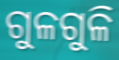
ଗୁଳଗୁଳି